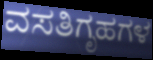
ವಸತಿಗೃಹಗಳ